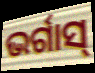
ଭର୍ଗାସ୍